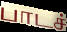
பாடச்